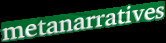
metanarratives